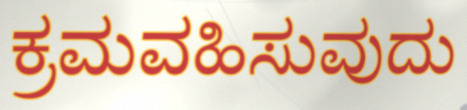
ಕ್ರಮವಹಿಸುವುದು